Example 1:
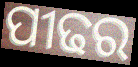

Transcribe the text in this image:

ପୀଢର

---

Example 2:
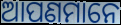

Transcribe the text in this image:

ଆପଣମାନେ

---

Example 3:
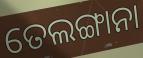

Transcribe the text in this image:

ତେଲଙ୍ଗାନା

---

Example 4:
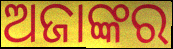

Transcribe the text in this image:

ଅଜାଙ୍କର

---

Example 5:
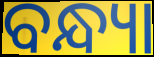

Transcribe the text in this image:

ବନ୍ଧ୍ୟା